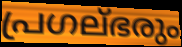
പ്രഗല്ഭരും